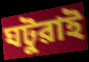
ঘটুৱাই